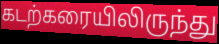
கடற்கரையிலிருந்து